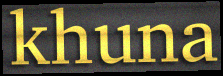
khuna